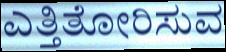
ಎತ್ತಿತೋರಿಸುವ